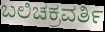
ಬಲಿಚಕ್ರವರ್ತಿ